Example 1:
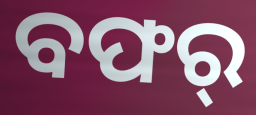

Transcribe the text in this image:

ବଫର୍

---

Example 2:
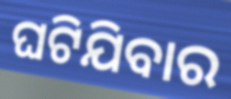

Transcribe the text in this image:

ଘଟିଯିବାର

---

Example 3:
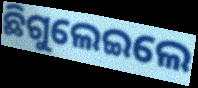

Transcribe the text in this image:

ଛିଗୁଲେଇଲେ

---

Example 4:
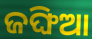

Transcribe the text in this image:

ଜଙ୍ଘିଆ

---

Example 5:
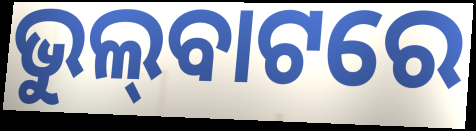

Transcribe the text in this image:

ଭୁଲ୍‌ବାଟରେ